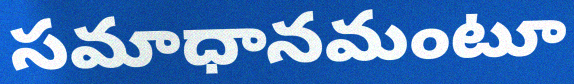
సమాధానమంటూ